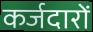
कर्जदारों